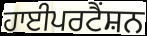
ਹਾਈਪਰਟੈਂਸ਼ਨ